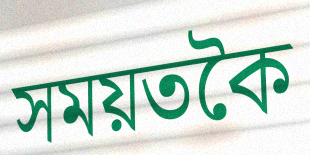
সময়তকৈ